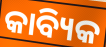
କାବ୍ୟିକ